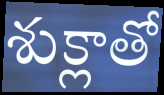
శుక్లాతో